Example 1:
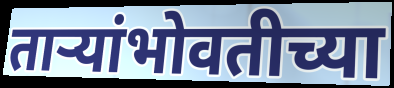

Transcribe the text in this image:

ताऱ्यांभोवतीच्या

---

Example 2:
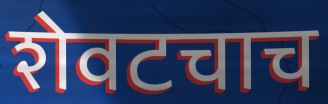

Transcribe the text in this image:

शेवटचाच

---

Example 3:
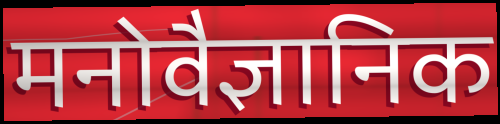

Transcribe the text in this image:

मनोवैज्ञानिक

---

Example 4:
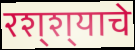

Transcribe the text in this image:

रश्श्याचे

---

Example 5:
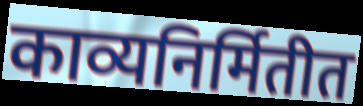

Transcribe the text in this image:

काव्यनिर्मितीत